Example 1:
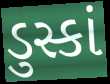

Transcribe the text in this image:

ડુસ્કાં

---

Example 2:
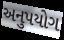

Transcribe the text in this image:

અનુપયોગ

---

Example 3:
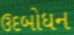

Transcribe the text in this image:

ઉદબોધન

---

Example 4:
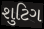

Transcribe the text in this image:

શુટિગ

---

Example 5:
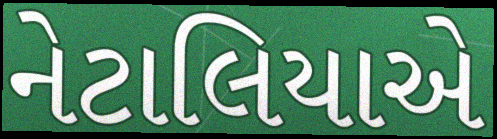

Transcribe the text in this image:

નેટાલિયાએ